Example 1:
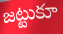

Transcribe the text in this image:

జట్టుకూ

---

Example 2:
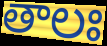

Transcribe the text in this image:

తాలః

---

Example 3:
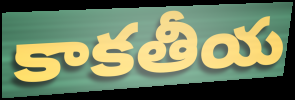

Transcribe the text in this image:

కాకతీయ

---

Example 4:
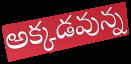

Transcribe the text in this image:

అక్కడవున్న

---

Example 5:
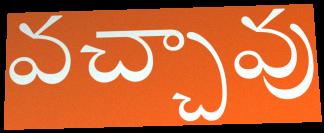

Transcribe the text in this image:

వచ్చావు